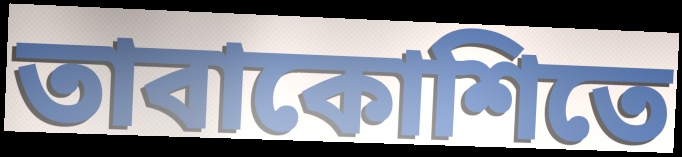
তাবাকোশিতে